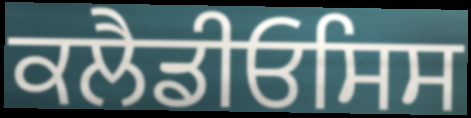
ਕਲੈਡੀਓਸਿਸ